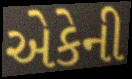
એકેની